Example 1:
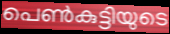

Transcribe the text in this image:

പെൺകുട്ടിയുടെ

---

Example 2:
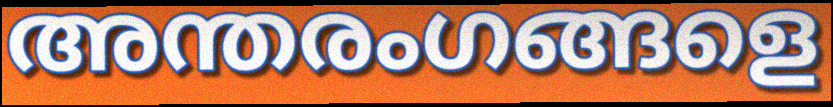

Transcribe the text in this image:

അന്തരംഗങ്ങളെ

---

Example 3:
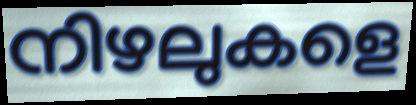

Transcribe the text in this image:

നിഴലുകളെ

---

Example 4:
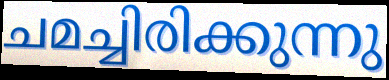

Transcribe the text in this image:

ചമച്ചിരിക്കുന്നു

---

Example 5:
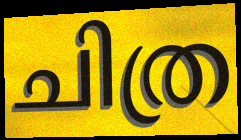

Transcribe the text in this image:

ചിത്ര